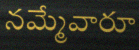
నమ్మేవారూ